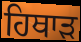
ਹਿਥਾੜ